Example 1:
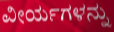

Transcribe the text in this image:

ವೀರ್ಯಗಳನ್ನು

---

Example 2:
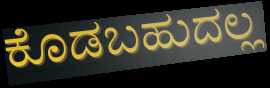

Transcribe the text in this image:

ಕೊಡಬಹುದಲ್ಲ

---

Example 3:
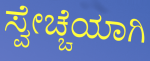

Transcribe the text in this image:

ಸ್ವೇಚ್ಚೆಯಾಗಿ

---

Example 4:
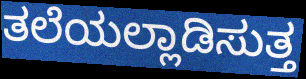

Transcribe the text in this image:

ತಲೆಯಲ್ಲಾಡಿಸುತ್ತ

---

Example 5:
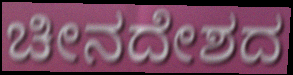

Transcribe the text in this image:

ಚೀನದೇಶದ